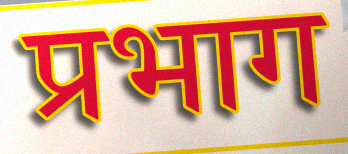
प्रभाग